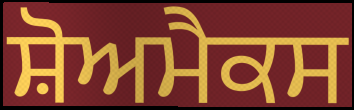
ਸ਼ੋਅਮੈਕਸ